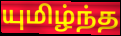
யுமிழ்ந்த